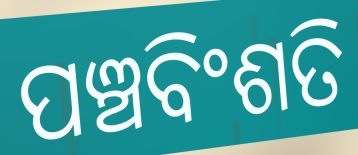
ପଞ୍ଚବିଂଶତି